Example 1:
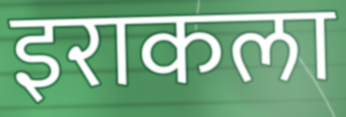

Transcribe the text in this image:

इराकला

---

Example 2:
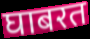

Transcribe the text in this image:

घाबरत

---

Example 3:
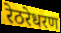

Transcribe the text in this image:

रेठरेधरण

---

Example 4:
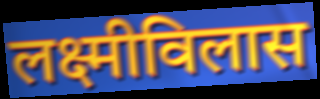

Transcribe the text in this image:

लक्ष्मीविलास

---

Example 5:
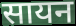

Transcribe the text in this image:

सायन